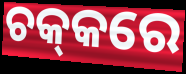
ଚକ୍‌କରେ